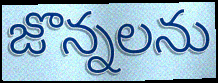
జొన్నలను